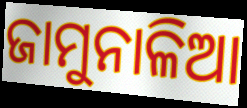
ଜାମୁନାଳିଆ